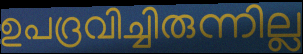
ഉപദ്രവിച്ചിരുന്നില്ല